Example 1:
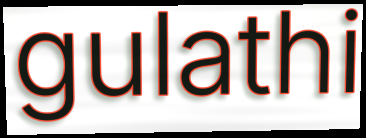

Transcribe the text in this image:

gulathi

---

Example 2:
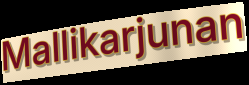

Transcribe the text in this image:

Mallikarjunan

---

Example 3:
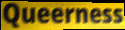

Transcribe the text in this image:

Queerness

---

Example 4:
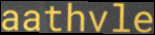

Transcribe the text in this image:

aathvle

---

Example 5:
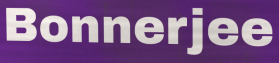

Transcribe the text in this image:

Bonnerjee